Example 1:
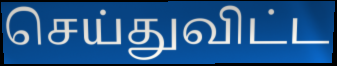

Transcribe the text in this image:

செய்துவிட்ட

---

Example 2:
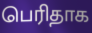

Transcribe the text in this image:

பெரிதாக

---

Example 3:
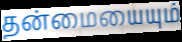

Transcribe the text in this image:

தன்மையையும்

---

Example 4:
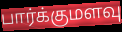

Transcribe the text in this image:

பார்க்குமளவு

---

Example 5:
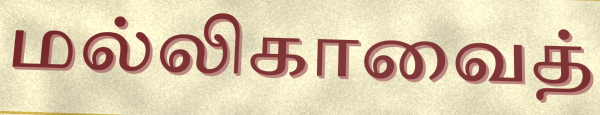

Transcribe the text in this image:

மல்லிகாவைத்